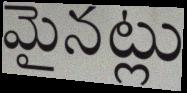
మైనట్లు